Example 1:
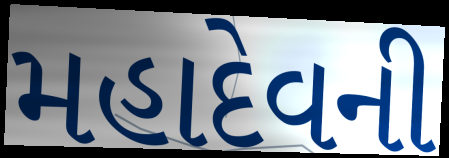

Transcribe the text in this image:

મહાદેવની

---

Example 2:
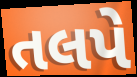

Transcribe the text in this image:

તલપે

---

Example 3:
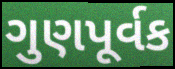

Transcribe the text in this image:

ગુણપૂર્વક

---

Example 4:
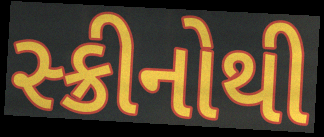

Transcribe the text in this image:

સ્ક્રીનોથી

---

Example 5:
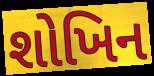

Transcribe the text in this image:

શોખિન